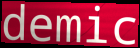
demic